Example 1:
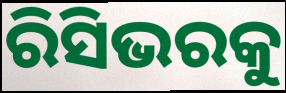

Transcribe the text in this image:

ରିସିଭରକୁ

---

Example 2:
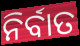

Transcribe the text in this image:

ନିର୍ବାତ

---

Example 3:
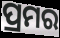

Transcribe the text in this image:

ପ୍ରମର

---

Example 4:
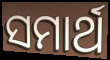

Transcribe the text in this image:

ସମାର୍ଥ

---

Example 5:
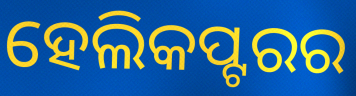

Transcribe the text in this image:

ହେଲିକପ୍ଟରର